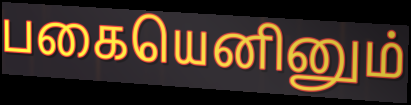
பகையெனினும்